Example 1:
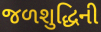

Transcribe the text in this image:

જળશુદ્ધિની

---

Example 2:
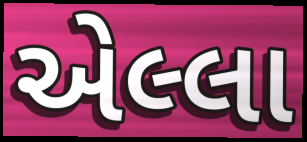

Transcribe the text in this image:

એલ્લા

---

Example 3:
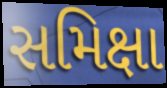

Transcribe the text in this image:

સમિક્ષા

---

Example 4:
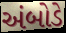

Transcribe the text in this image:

અંબોડે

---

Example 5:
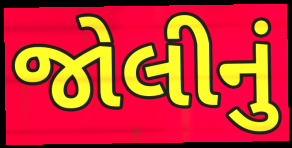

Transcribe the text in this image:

જોલીનું